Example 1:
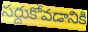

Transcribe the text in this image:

సర్దుకోవడానికి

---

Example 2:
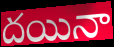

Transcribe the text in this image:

దయినా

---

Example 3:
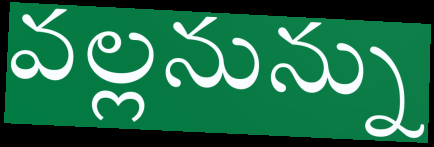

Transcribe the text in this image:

వల్లనున్ను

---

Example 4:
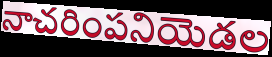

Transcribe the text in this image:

నాచరింపనియెడల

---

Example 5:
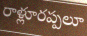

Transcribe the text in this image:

రాళ్లూరప్పలూ